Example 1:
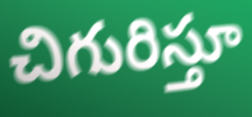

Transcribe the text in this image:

చిగురిస్తూ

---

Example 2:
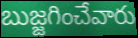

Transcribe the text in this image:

బుజ్జగించేవారు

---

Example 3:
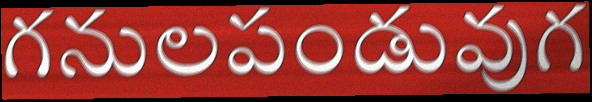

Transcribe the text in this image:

గనులపండువుగ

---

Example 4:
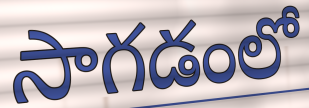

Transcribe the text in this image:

సాగడంలో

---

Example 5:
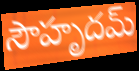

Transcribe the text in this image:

సౌహృదమ్